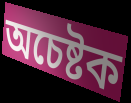
অচেষ্টক